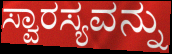
ಸ್ವಾರಸ್ಯವನ್ನು